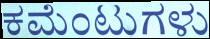
ಕಮೆಂಟುಗಳು